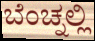
ಬೆಂಚ್ನಲ್ಲಿ